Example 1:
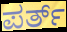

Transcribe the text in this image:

ಪರ್ತ್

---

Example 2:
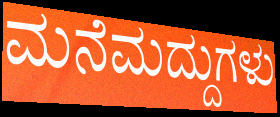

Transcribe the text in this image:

ಮನೆಮದ್ದುಗಳು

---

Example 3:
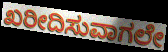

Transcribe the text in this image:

ಖರೀದಿಸುವಾಗಲೇ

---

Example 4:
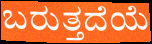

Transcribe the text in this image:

ಬರುತ್ತದೆಯೆ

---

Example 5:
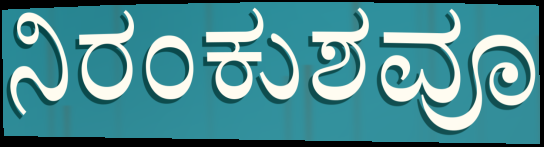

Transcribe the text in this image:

ನಿರಂಕುಶವೂ